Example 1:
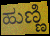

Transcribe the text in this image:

ಹುಣ್ಣಿ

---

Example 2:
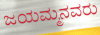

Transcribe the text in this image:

ಜಯಮ್ಮನವರು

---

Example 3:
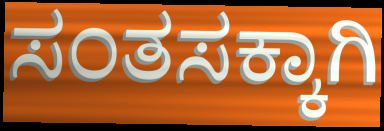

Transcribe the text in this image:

ಸಂತಸಕ್ಕಾಗಿ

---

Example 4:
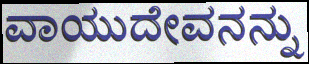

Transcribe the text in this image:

ವಾಯುದೇವನನ್ನು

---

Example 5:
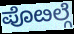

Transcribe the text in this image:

ಪೊೞಲ್ಗೆ